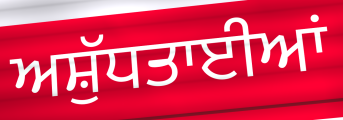
ਅਸ਼ੁੱਧਤਾਈਆਂ